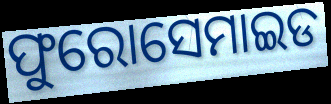
ଫୁରୋସେମାଇଡ